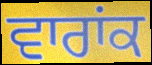
ਵਾਰਾਂਕ